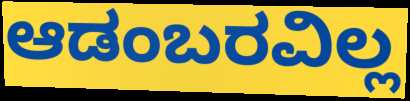
ಆಡಂಬರವಿಲ್ಲ